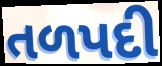
તળપદી